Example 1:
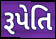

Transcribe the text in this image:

રૂપેતિ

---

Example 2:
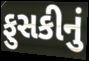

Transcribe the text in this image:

ફુસકીનું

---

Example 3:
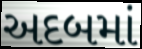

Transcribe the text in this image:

અદબમાં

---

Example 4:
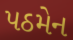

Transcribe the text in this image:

પઠમેન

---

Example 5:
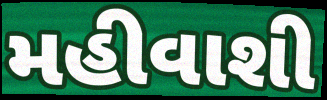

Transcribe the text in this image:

મહીવાશી